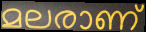
മലരാണ്